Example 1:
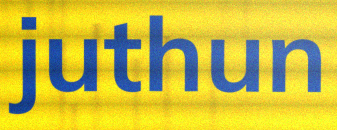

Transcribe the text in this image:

juthun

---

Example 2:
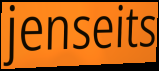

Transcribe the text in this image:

jenseits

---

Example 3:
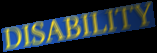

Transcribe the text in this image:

DISABILITY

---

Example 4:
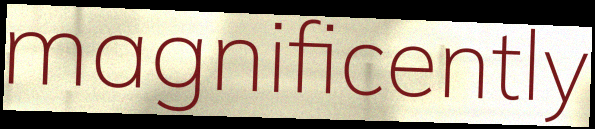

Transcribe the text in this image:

magnificently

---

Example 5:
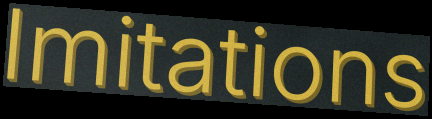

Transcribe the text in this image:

Imitations